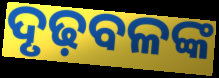
ଦୃଢ଼ବଳଙ୍କ